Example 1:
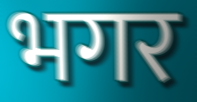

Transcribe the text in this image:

भगर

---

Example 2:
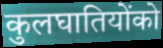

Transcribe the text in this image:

कुलघातियोंको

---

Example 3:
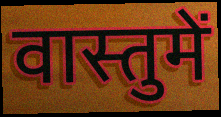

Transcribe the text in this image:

वास्तुमें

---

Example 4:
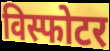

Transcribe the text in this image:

विस्फोटर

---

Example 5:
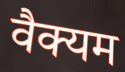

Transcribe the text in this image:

वैक्यम